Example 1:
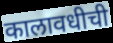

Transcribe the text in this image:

कालावधीची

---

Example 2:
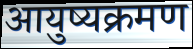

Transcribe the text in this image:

आयुष्यक्रमण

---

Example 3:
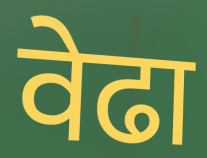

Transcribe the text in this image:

वेढा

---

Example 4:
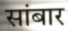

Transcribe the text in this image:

सांबार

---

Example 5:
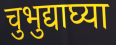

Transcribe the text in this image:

चुभुद्याघ्या